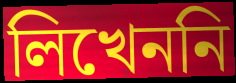
লিখেননি